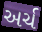
અર્ચ